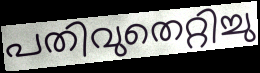
പതിവുതെറ്റിച്ചു